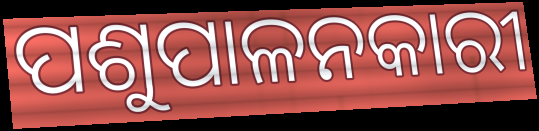
ପଶୁପାଳନକାରୀ